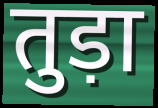
तुड़ा